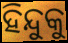
ହିନ୍ଦୁକୁ